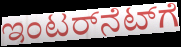
ಇಂಟರ್‌ನೆಟ್‌ಗೆ